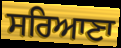
ਸਰਿਆਣਾ